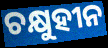
ଚକ୍ଷୁହୀନ